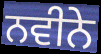
ਨਵੀਨੇ